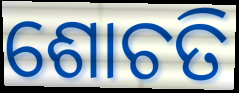
ଶୋଚତି